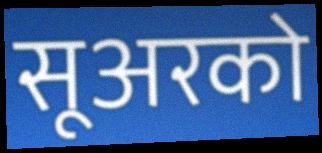
सूअरको